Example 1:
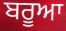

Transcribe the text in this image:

ਬਰੂਆ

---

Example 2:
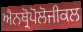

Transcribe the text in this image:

ਐਨਥ੍ਰੋਪੋਲੋਜੀਕਲ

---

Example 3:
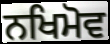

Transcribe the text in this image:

ਨਖਿਮੋਵ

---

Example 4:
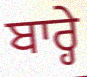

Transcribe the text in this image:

ਬਾਰ੍ਹੇ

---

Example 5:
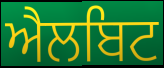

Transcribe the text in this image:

ਐਲਬਿਟ